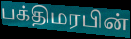
பக்திமரபின்